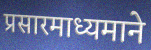
प्रसारमाध्यमाने